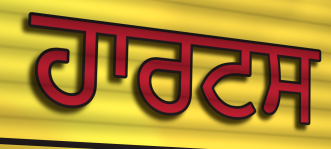
ਹਾਰਟਸ